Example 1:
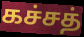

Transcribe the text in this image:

கச்சத்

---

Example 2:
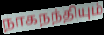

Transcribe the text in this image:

நாகநந்தியும்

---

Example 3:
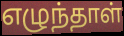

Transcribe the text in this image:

எழுந்தாள்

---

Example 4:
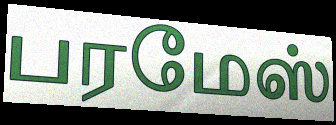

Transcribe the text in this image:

பரமேஸ்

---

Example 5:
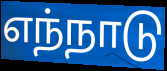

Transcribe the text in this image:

எந்நாடு